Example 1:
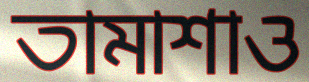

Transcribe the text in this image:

তামাশাও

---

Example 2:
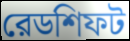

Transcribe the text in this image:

রেডশিফট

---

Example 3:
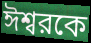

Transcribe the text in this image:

ঈশ্বরকে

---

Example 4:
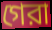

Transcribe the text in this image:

গেরা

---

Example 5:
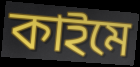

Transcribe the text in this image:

কাইমে